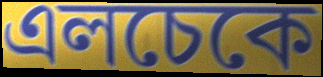
এলচেকে